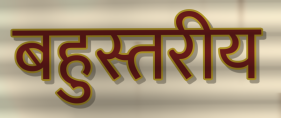
बहुस्तरीय